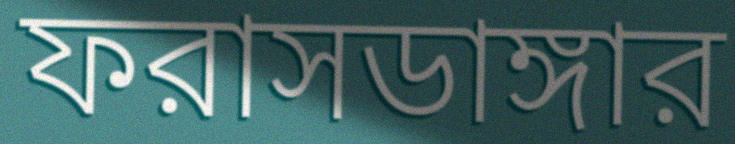
ফরাসডাঙ্গার